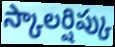
స్కాలర్షిప్కు